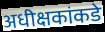
अधीक्षकांकडे